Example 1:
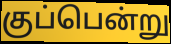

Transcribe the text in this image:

குப்பென்று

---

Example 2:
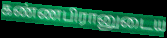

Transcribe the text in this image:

கண்ணபிரானுடைய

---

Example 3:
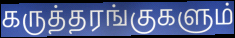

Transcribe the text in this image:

கருத்தரங்குகளும்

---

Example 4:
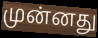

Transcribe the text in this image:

முன்னது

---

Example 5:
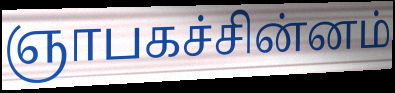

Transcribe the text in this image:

ஞாபகச்சின்னம்